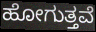
ಹೋಗುತ್ತವೆ